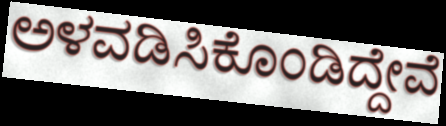
ಅಳವಡಿಸಿಕೊಂಡಿದ್ದೇವೆ